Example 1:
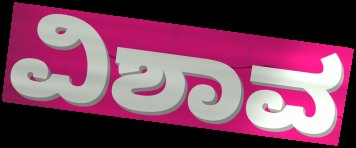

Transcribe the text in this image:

ವಿಶಾವ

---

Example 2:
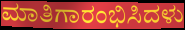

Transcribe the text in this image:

ಮಾತಿಗಾರಂಭಿಸಿದಳು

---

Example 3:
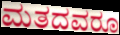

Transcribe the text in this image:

ಮತದವರೂ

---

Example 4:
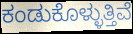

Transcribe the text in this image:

ಕಂಡುಕೊಳ್ಳುತ್ತಿವೆ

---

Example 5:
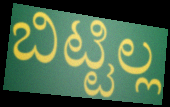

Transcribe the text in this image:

ಬಿಟ್ಟಿಲ್ಲ